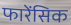
फारेंसिक